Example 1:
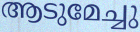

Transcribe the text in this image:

ആടുമേച്ചു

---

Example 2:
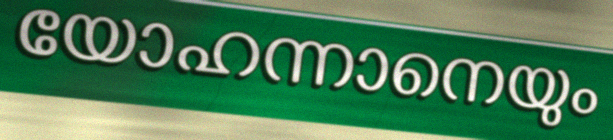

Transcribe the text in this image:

യോഹന്നാനെയും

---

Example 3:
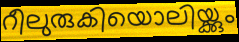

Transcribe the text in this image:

റീലുരുകിയൊലിയ്ക്കും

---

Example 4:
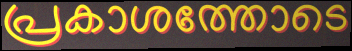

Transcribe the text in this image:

പ്രകാശത്തോടെ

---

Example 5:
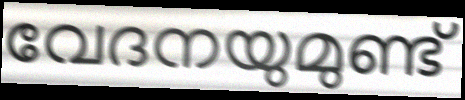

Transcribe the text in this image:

വേദനയുമുണ്ട്